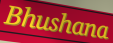
Bhushana